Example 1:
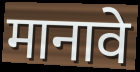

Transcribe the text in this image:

मानावे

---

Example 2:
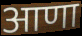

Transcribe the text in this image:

आणा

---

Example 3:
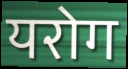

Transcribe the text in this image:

यरोग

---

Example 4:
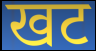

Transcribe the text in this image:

खट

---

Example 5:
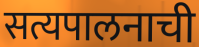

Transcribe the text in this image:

सत्यपालनाची